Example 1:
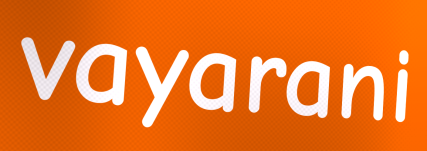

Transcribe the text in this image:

vayarani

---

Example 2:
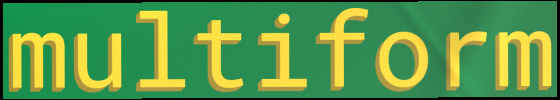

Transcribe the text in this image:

multiform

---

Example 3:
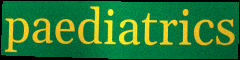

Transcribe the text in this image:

paediatrics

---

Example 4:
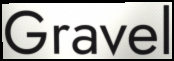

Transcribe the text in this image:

Gravel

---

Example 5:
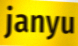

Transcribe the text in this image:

janyu